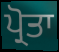
ਪ੍ਰੋਤਾ